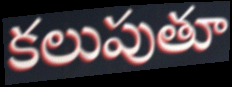
కలుపుతూ